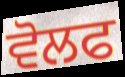
ਵੋਲਫ